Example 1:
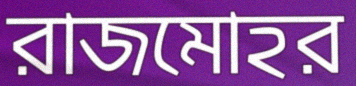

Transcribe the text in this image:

রাজমোহর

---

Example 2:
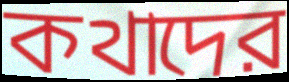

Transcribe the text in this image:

কথাদের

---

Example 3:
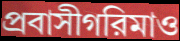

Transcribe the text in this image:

প্রবাসীগরিমাও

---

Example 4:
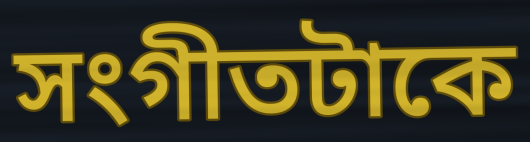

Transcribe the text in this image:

সংগীতটাকে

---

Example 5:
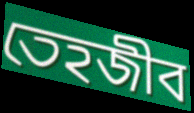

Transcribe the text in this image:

তেহজীব